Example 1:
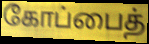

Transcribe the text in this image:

கோப்பைத்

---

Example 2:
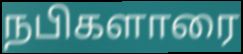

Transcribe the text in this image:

நபிகளாரை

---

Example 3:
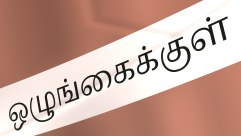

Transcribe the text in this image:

ஒழுங்கைக்குள்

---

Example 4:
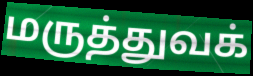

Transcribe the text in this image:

மருத்துவக்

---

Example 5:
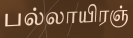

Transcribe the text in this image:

பல்லாயிரஞ்